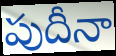
పుదీనా